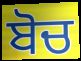
ਬੋਚ